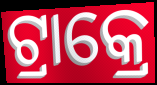
ଟ୍ରାକ୍ରେ